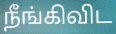
நீங்கிவிட